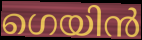
ഗെയിൻ